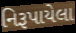
નિરૂપાયેલા